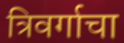
त्रिवर्गाचा